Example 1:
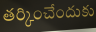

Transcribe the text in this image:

తర్కించేందుకు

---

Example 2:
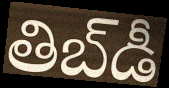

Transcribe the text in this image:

తిబ్‌డీ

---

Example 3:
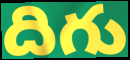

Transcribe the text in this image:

దిగు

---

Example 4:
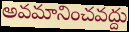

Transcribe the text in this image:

అవమానించవద్దు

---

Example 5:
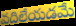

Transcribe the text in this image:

వదిలేయడమే